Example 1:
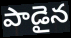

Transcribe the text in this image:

పాడైన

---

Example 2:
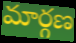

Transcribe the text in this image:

మార్గణ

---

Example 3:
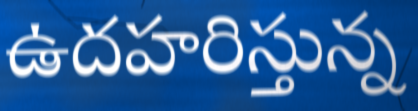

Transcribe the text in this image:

ఉదహరిస్తున్న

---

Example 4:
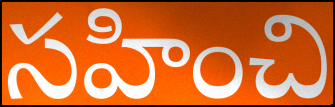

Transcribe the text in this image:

సహించి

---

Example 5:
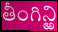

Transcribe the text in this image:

తీంగిన్ఱి